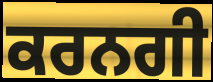
ਕਰਨਗੀ